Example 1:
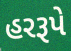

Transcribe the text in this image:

હરરૂપે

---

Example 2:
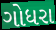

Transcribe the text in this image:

ગોધરા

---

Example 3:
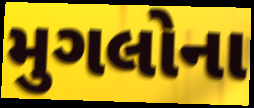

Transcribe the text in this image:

મુગલોના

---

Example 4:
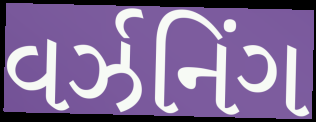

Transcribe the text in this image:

વર્ઝનિંગ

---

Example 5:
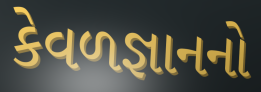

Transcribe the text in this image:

કેવળજ્ઞાનનો